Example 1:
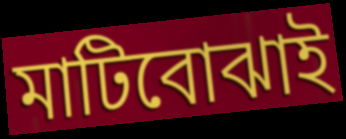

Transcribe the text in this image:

মাটিবোঝাই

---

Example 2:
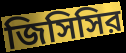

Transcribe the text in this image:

জিসিসির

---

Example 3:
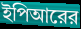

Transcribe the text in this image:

ইপিআরের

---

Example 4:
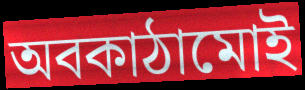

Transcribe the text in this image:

অবকাঠামোই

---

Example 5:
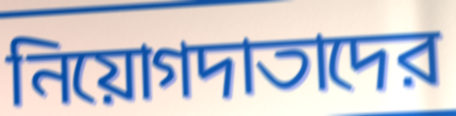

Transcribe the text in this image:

নিয়োগদাতাদের